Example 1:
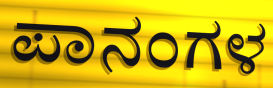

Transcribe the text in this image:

ಪಾನಂಗಳ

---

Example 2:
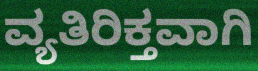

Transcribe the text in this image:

ವ್ಯತಿರಿಕ್ತವಾಗಿ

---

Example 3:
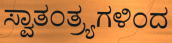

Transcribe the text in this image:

ಸ್ವಾತಂತ್ರ್ಯಗಳಿಂದ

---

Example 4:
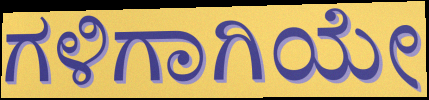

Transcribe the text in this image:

ಗಳಿಗಾಗಿಯೇ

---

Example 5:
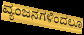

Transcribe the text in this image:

ವ್ಯಂಜನಗಳಿಂದಲೂ